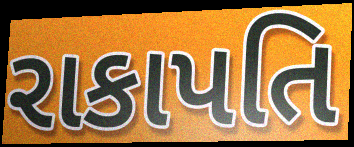
રાકાપતિ